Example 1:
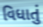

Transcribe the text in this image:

વિધાતું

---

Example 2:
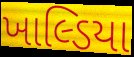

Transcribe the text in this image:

ખાલ્ડિયા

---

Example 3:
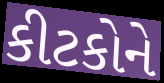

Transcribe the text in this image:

કીટકોને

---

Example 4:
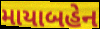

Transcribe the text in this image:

માયાબહેન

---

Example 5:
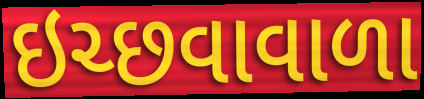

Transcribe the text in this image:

ઇચ્છવાવાળા